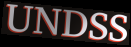
UNDSS